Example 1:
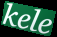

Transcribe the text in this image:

kele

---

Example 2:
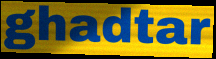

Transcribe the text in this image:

ghadtar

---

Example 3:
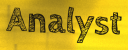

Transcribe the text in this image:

Analyst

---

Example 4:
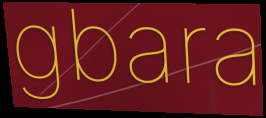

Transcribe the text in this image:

gbara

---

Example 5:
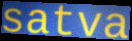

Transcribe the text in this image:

satva